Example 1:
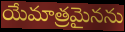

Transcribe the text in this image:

యేమాత్రమైనను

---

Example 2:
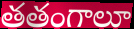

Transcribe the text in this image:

తతంగాలూ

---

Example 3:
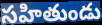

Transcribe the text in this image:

సహితుండు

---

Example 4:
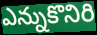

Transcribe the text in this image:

ఎన్నుకొనిరి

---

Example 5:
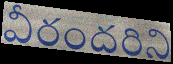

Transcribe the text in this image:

వీరందరిని